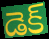
డెక్